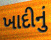
ખાદીનું